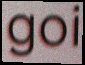
goi